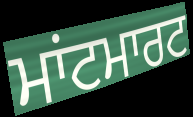
ਮਾਂਟਮਾਰਟ